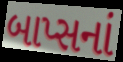
બાપ્સનાં